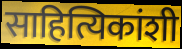
साहित्यिकांशी